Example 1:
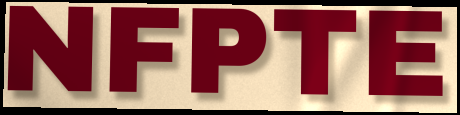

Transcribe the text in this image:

NFPTE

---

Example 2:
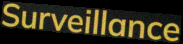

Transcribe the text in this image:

Surveillance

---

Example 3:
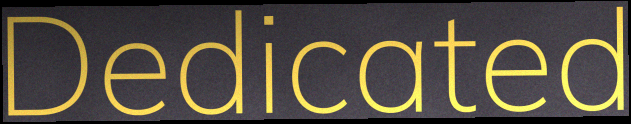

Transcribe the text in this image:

Dedicated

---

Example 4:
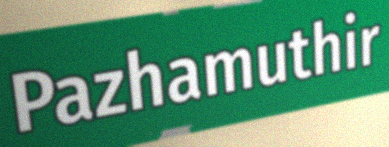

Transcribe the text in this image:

Pazhamuthir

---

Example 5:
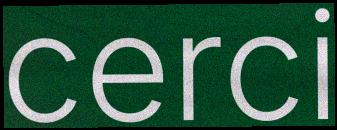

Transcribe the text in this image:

cerci